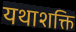
यथाशक्ति